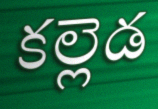
కల్లెడ